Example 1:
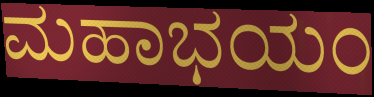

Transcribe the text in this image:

ಮಹಾಭಯಂ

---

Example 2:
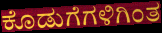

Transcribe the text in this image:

ಕೊಡುಗೆಗಳಿಗಿಂತ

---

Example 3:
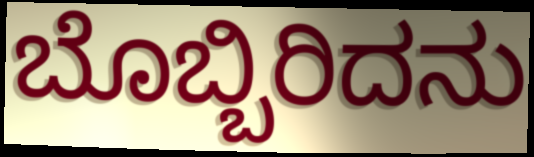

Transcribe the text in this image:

ಬೊಬ್ಬಿರಿದನು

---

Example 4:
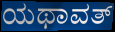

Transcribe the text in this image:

ಯಥಾವತ್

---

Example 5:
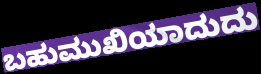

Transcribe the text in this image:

ಬಹುಮುಖಿಯಾದುದು